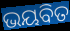
ଭୟବିତ